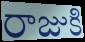
రాజుకి